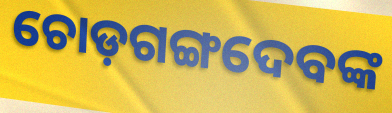
ଚୋଡ଼ଗଙ୍ଗଦେବଙ୍କ